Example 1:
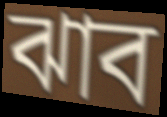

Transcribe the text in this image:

ঝাব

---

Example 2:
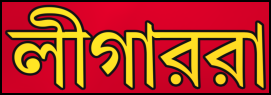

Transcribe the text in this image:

লীগাররা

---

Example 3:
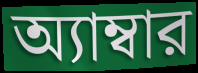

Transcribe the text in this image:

অ্যাম্বার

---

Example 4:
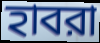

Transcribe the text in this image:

হাবরা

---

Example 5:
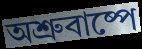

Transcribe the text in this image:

অশ্রুবাষ্পে